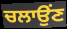
ਚਲਾਉਂਣ